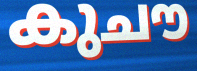
കുചൗ